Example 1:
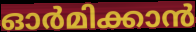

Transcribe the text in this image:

ഓർമിക്കാൻ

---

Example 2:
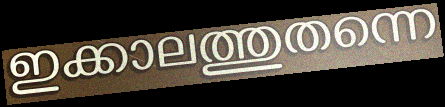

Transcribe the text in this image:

ഇക്കാലത്തുതന്നെ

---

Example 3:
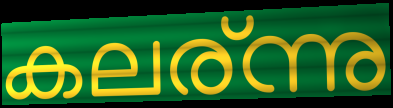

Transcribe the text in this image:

കലര്ന്നു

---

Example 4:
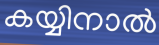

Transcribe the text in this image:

കയ്യിനാൽ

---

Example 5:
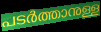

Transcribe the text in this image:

പടർത്താനുള്ള